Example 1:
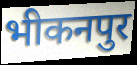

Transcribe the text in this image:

भीकनपुर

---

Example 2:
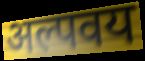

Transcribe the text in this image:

अल्पवय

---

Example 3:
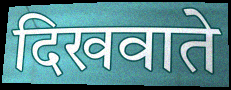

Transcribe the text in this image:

दिखवाते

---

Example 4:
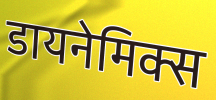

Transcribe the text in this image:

डायनेमिक्स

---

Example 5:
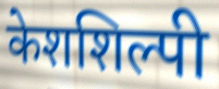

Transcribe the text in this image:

केशशिल्पी